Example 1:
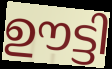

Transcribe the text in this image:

ഊട്ടി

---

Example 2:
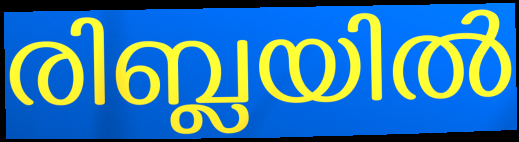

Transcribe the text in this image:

രിബ്ലയിൽ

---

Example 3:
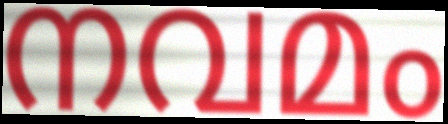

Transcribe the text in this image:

നവമം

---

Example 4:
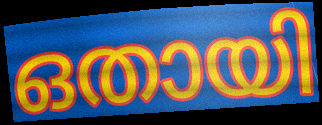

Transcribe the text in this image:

ഒതായി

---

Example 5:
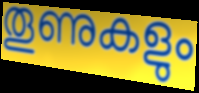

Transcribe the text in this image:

തൂണുകളും